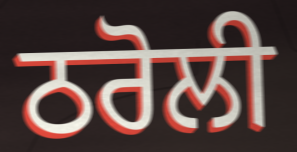
ਠਰੋਲੀ